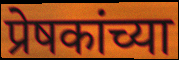
प्रेषकांच्या